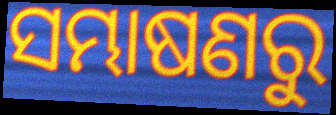
ସମ୍ଭାଷଣରୁ